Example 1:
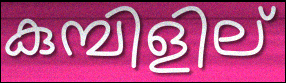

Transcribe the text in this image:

കുമ്പിളില്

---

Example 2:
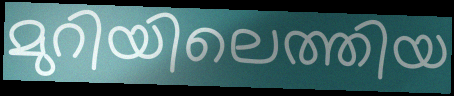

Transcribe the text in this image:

മുറിയിലെത്തിയ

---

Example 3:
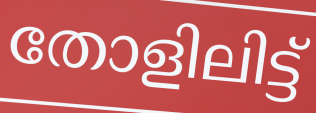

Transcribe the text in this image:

തോളിലിട്ട്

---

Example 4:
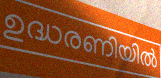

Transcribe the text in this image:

ഉദ്ധരണിയിൽ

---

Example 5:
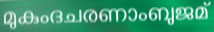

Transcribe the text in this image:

മുകുംദചരണാംബുജമ്